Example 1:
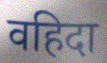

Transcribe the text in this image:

वहिदा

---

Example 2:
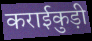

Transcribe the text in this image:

कराईकुड़ी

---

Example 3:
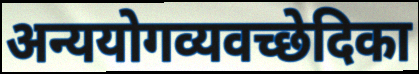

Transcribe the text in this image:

अन्ययोगव्यवच्छेदिका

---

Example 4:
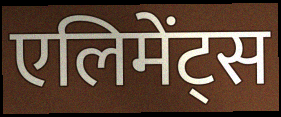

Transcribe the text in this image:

एलिमेंट्स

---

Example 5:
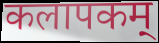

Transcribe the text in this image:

कलापकम्